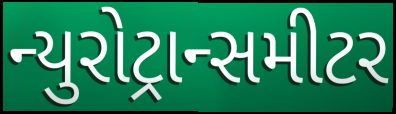
ન્યુરોટ્રાન્સમીટર